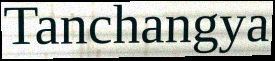
Tanchangya